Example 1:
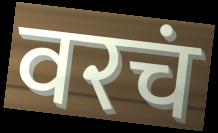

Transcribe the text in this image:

वरचं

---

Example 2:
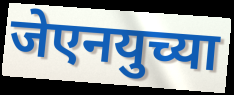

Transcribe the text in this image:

जेएनयुच्या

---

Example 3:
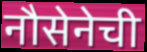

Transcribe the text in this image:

नौसेनेची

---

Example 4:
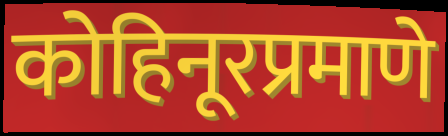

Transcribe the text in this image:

कोहिनूरप्रमाणे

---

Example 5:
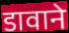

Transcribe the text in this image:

डावाने